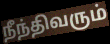
நீந்திவரும்